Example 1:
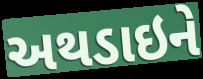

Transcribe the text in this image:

અથડાઇને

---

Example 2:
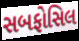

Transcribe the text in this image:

સબફોસિલ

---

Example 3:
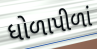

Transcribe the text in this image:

ધોળાપીળાં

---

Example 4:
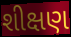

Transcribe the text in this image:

શીક્ષણ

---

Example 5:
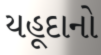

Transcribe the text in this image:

યહૂદાનો